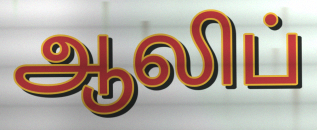
ஆலிப்